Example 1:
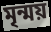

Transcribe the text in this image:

মৃন্ময়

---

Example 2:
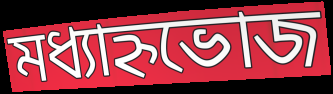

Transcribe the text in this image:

মধ্যাহ্নভোজ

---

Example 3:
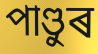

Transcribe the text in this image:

পাণ্ডুৰ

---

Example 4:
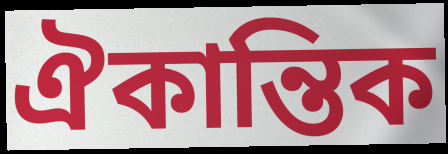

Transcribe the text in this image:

ঐকান্তিক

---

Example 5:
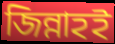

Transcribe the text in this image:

জিন্নাহই